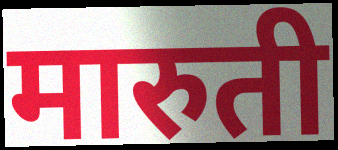
मारुती